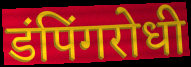
डंपिंगरोधी